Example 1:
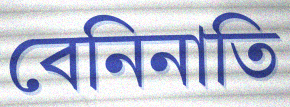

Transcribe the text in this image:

বেনিনাতি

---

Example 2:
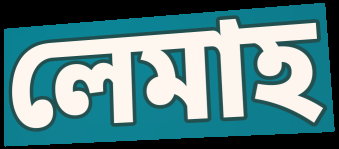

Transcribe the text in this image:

লেমাহ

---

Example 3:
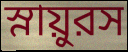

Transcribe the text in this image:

স্নায়ুরস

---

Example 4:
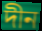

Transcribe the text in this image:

দীন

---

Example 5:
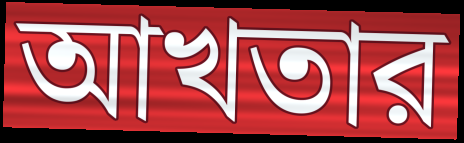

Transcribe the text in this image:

আখতার